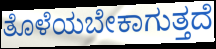
ತೊಳೆಯಬೇಕಾಗುತ್ತದೆ